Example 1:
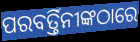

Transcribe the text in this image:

ପରବର୍ତ୍ତିନୀଙ୍କଠାରେ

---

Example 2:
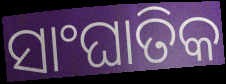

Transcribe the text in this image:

ସାଂଘାତିକ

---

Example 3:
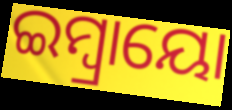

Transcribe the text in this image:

ଇମ୍ବ୍ରାୟୋ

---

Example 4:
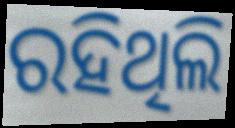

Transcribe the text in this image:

ରହିଥିଲି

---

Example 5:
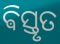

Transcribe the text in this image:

ଵିସ୍ତୃତ